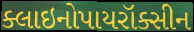
ક્લાઇનોપાયરૉક્સીન